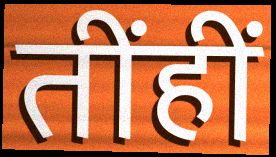
तींहीं